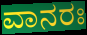
ವಾನರಃ